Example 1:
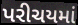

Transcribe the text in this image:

પરીચયમાં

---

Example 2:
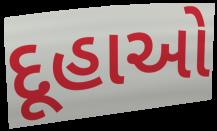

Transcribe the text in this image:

દૂહાઓ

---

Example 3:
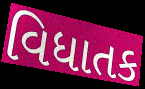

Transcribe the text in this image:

વિધાતક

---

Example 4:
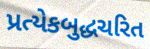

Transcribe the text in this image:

પ્રત્યેકબુદ્ધચરિત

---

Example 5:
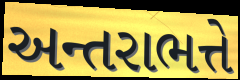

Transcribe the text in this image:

અન્તરાભત્તે